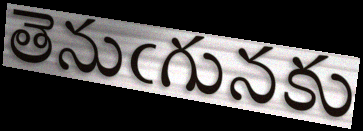
తెనుఁగునకు